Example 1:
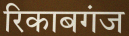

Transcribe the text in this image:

रिकाबगंज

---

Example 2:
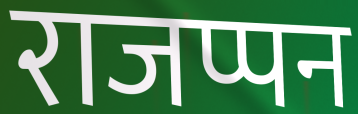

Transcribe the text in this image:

राजप्पन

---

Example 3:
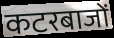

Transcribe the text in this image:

कटरबाजों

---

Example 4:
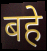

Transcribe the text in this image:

बहे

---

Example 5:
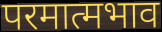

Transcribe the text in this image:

परमात्मभाव